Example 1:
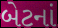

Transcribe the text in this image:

બેટનાં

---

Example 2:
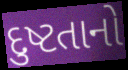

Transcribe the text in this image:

દુષ્ટતાનો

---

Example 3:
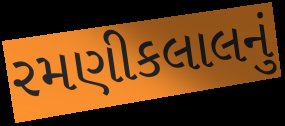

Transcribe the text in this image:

રમણીકલાલનું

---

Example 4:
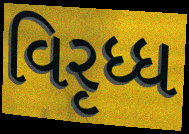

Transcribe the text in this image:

વિરૃધ્ધ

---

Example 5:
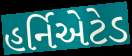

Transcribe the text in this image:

હર્નિએટેડ